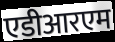
एडीआरएम